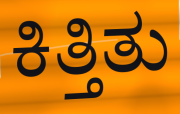
ಕಿತ್ತಿತು